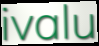
ivalu